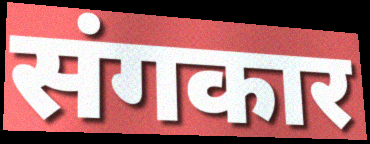
संगकार